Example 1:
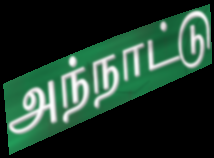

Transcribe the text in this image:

அந்நாட்டு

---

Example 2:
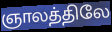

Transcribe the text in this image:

ஞாலத்திலே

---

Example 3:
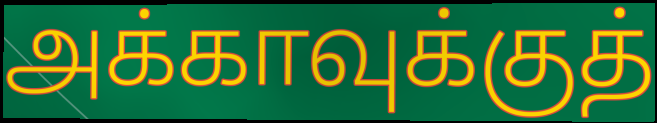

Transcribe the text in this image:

அக்காவுக்குத்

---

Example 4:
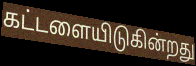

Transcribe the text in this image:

கட்டளையிடுகின்றது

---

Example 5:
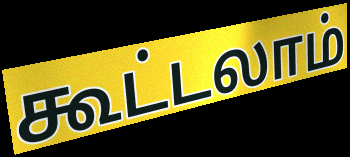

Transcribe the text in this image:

கூட்டலாம்